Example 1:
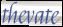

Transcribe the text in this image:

thevate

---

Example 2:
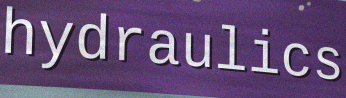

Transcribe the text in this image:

hydraulics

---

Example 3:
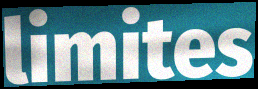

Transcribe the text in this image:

limites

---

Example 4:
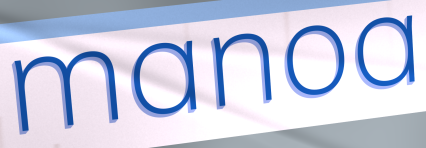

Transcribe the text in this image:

manoa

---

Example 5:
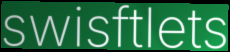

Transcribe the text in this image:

swisftlets